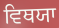
ਵਿਥਯਾ